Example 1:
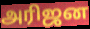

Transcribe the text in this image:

அரிஜன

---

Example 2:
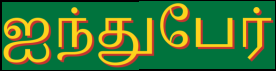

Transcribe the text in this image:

ஐந்துபேர்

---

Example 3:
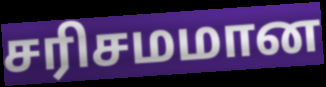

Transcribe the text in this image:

சரிசமமான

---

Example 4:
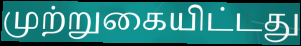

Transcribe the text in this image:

முற்றுகையிட்டது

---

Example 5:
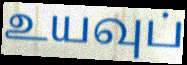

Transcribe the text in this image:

உயவுப்